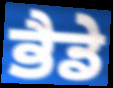
ਭੈਡੇ